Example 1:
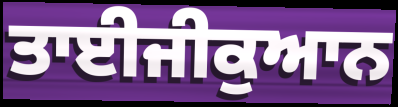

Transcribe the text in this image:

ਤਾਈਜੀਕੁਆਨ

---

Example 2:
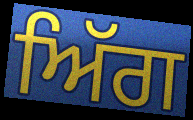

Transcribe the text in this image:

ਅਿੱਗ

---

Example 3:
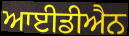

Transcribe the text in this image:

ਆਈਡੀਐਨ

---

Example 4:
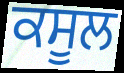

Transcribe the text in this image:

ਕਸੂਲ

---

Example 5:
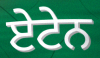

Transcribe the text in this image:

ਏਟੇਨ